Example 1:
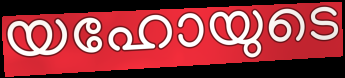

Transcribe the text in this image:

യഹോയുടെ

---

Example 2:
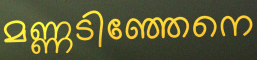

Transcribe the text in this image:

മണ്ണടിഞ്ഞേനെ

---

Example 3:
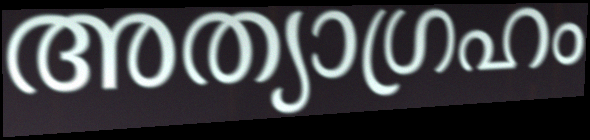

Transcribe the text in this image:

അത്യാഗ്രഹം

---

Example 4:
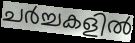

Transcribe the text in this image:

ചർച്ചകളിൽ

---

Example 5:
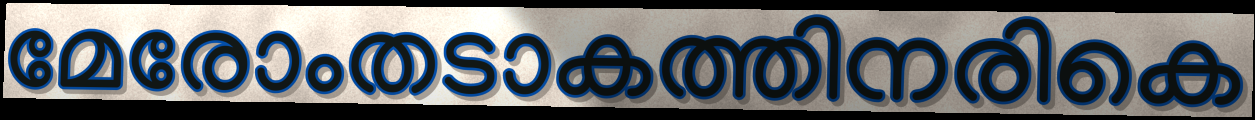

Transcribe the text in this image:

മേരോംതടാകത്തിനരികെ